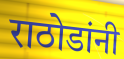
राठोडांनी